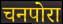
चनपोरा